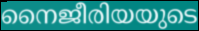
നൈജീരിയയുടെ